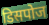
डिसपोज